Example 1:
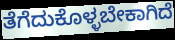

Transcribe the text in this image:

ತೆಗೆದುಕೊಳ್ಳಬೇಕಾಗಿದೆ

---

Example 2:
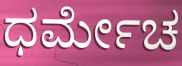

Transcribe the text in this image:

ಧರ್ಮೇಚ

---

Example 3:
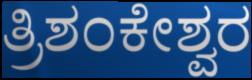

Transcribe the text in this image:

ತ್ರಿಶಂಕೇಶ್ವರ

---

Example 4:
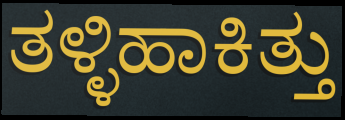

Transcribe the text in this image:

ತಳ್ಳಿಹಾಕಿತ್ತು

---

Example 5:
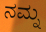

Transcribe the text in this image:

ನಮ್ನ